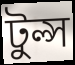
টুল্স